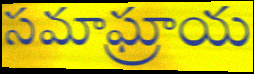
సమాఘ్రాయ